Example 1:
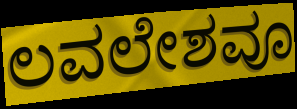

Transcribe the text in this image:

ಲವಲೇಶವೂ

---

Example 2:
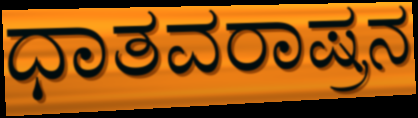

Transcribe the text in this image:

ಧಾತವರಾಷ್ರನ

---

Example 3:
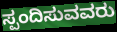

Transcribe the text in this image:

ಸ್ಪಂದಿಸುವವರು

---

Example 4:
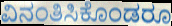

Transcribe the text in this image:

ವಿನಂತಿಸಿಕೊಂಡರೂ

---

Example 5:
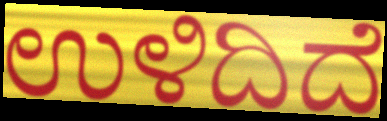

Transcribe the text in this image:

ಉಳಿದಿದೆ